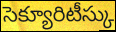
సెక్యూరిటీస్కు